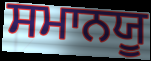
ਸਮਾਨਯੂ